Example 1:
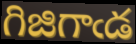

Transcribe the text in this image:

గిజిగాఁడ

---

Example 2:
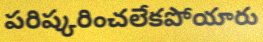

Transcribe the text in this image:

పరిష్కరించలేకపోయారు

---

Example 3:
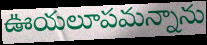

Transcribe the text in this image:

ఊయలూపమన్నాను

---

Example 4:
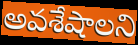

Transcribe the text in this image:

అవశేషాలని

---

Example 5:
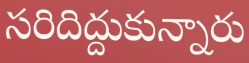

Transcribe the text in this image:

సరిదిద్దుకున్నారు